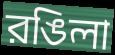
রঙিলা